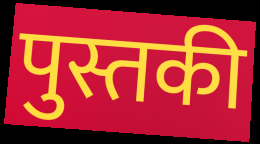
पुस्तकी